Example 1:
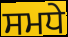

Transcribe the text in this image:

ਸਮਧੇ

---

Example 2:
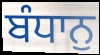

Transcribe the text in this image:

ਬੰਧਾਨੁ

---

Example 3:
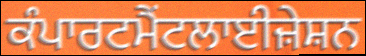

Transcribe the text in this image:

ਕੰਪਾਰਟਮੈਂਟਲਾਈਜ਼ੇਸ਼ਨ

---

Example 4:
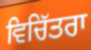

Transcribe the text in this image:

ਵਿਚਿੱਤਰਾ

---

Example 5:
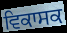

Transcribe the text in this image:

ਵਿਕਾਸਕ